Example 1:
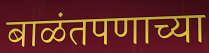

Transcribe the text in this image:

बाळंतपणाच्या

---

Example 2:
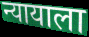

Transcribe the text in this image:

न्यायाला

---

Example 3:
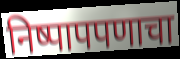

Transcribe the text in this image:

निष्पापपणाचा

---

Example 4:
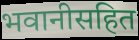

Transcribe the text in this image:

भवानीसहित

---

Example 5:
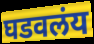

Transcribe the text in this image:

घडवलंय